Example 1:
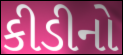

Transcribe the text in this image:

કીડીનો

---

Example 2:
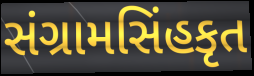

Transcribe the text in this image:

સંગ્રામસિંહકૃત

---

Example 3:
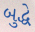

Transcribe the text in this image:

બુદ્ધે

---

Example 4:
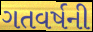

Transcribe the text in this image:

ગતવર્ષની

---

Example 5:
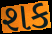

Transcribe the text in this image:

શક